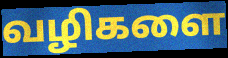
வழிகளை